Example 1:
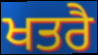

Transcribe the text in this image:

ਖਤਰੈ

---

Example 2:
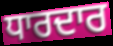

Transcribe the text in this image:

ਧਾਰਦਾਰ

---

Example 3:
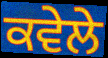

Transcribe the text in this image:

ਕਵੇਲੇ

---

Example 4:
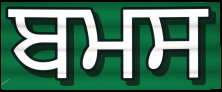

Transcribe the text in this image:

ਬਮਸ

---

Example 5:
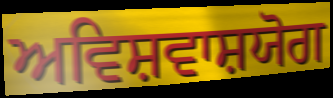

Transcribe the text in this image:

ਅਵਿਸ਼ਵਾਸ਼ਯੋਗ